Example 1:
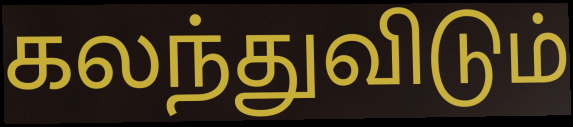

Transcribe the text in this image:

கலந்துவிடும்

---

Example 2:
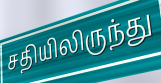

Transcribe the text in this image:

சதியிலிருந்து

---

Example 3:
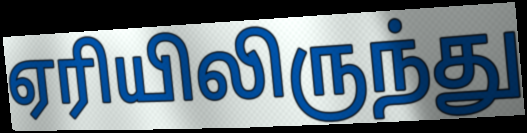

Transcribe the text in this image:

ஏரியிலிருந்து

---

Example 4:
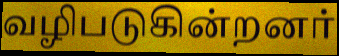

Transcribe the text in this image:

வழிபடுகின்றனர்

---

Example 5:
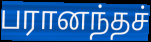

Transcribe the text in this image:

பரானந்தச்